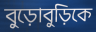
বুড়োবুড়িকে